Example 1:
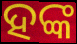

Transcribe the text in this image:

ହଙ୍କ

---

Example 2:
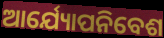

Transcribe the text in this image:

ଆର୍ଯ୍ୟୋପନିବେଶ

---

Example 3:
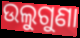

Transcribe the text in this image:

ଉଲୁଗୁଣା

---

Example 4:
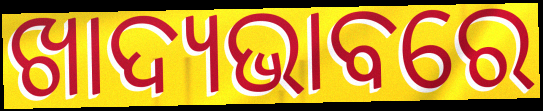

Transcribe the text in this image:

ଖାଦ୍ୟଭାବରେ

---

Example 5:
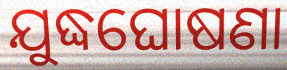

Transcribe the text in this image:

ଯୁଦ୍ଧଘୋଷଣା